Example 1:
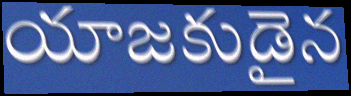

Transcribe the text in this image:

యాజకుడైన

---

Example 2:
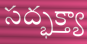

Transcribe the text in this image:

సద్భక్త్యా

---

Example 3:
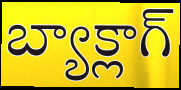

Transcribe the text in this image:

బ్యాక్లాగ్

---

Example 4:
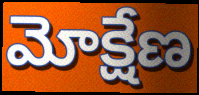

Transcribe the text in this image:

మోక్షేణ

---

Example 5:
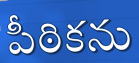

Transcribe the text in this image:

పీఠికను